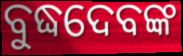
ବୁଦ୍ଧଦେବଙ୍କ